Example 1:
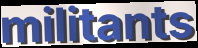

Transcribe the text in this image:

militants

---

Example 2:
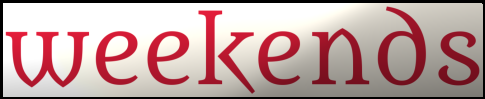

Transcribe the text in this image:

weekends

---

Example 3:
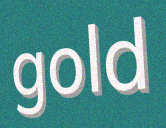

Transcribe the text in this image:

gold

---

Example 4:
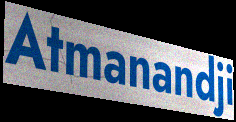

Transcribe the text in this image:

Atmanandji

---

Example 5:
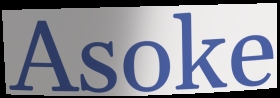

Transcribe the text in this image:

Asoke